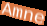
Amne